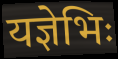
यज्ञेभिः